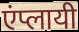
एंप्लायी